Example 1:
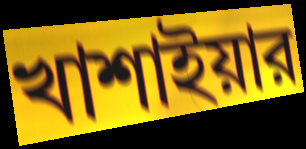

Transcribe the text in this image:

খাশাইয়ার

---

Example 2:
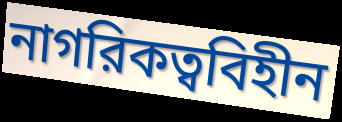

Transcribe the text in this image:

নাগরিকত্ববিহীন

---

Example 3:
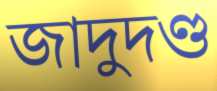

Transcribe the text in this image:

জাদুদণ্ড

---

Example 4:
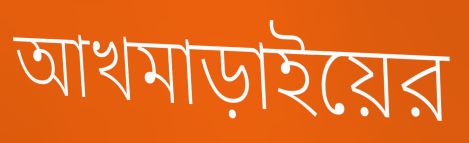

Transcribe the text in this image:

আখমাড়াইয়ের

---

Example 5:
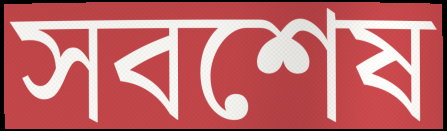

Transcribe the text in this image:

সবশেষ